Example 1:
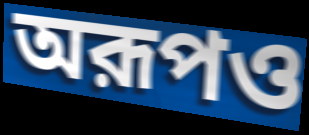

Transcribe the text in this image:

অরূপও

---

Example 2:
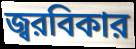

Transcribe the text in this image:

জ্বরবিকার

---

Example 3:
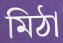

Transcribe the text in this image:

মিঠা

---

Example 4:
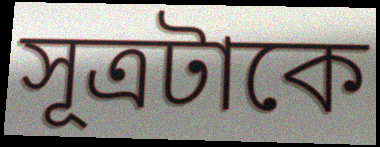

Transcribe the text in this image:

সূত্রটাকে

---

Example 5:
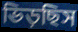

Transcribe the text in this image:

ভিড়ছিস